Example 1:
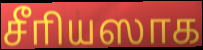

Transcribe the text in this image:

சீரியஸாக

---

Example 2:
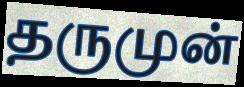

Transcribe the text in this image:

தருமுன்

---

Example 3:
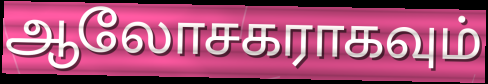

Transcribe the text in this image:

ஆலோசகராகவும்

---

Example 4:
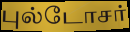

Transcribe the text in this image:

புல்டோசர்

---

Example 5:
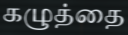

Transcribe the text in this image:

கழுத்தை